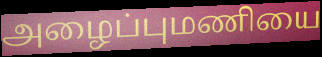
அழைப்புமணியை